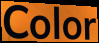
Color